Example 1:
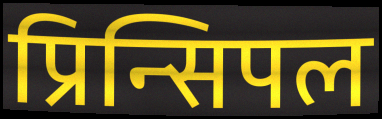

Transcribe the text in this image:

प्रिन्सिपल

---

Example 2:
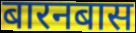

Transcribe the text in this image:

बारनबास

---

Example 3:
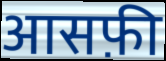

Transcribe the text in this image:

आसफ़ी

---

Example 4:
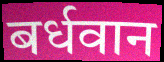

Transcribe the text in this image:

बर्धवान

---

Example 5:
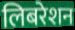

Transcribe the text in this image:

लिबरेशन